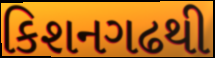
કિશનગઢથી